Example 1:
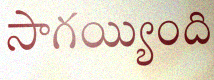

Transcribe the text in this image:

సాగయ్యింది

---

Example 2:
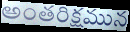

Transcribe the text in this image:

అంతరిక్షమున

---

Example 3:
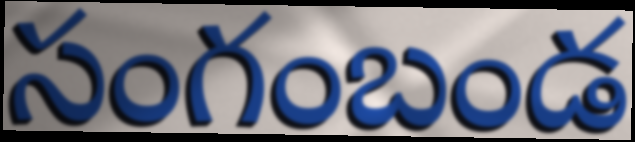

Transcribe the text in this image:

సంగంబండ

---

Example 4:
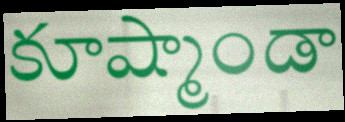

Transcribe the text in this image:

కూష్మాండా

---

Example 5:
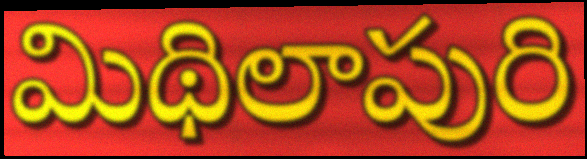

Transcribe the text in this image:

మిథిలాపురి